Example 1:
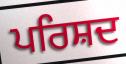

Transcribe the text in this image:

ਪਰਿਸ਼ਦ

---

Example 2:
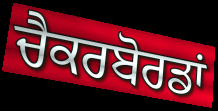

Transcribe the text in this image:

ਚੈਕਰਬੋਰਡਾਂ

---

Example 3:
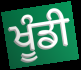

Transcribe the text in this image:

ਖੂੰਡੀ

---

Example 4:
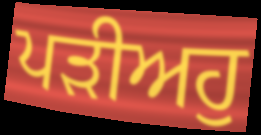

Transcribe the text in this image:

ਪੜੀਅਹੁ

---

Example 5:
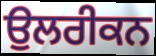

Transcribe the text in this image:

ਉਲਰੀਕਨ